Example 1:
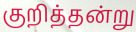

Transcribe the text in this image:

குறித்தன்று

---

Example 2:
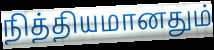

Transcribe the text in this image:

நித்தியமானதும்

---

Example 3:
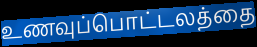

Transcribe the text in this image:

உணவுப்பொட்டலத்தை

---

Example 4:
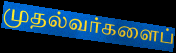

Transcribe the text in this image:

முதல்வர்களைப்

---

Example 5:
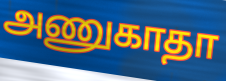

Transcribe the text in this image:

அணுகாதா